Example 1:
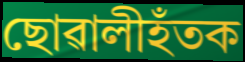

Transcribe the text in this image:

ছোৱালীহঁতক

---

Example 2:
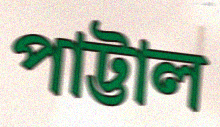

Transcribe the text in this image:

পাট্টাল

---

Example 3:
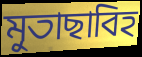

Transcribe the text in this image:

মুতাছাবিহ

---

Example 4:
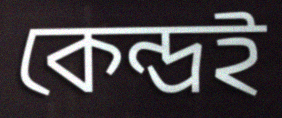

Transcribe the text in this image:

কেন্দ্ৰই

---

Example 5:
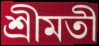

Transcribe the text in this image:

শ্ৰীমতী